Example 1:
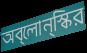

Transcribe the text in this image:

অব্‌লোন্‌স্কির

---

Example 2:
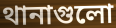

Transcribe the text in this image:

থানাগুলো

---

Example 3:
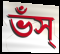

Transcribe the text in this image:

ভঁস্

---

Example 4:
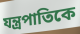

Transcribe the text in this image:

যন্ত্রপাতিকে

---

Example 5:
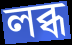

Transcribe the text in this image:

লব্ধ